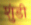
शुंडी